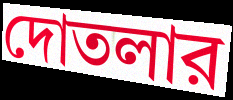
দোতলার